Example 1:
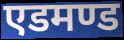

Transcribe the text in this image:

एडमण्ड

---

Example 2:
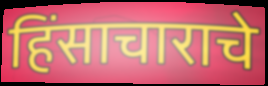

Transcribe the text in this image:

हिंसाचाराचे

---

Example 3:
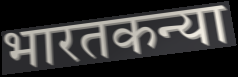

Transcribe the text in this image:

भारतकन्या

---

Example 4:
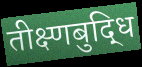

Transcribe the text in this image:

तीक्ष्णबुद्धि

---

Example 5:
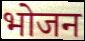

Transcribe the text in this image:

भोजन